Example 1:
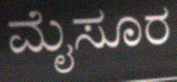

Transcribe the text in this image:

ಮೈಸೂರ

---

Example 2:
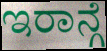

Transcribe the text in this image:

ಇರಾನ್ಗೆ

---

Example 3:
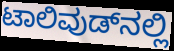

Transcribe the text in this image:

ಟಾಲಿವುಡ್‌ನಲ್ಲಿ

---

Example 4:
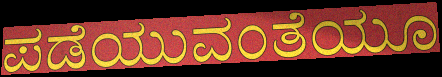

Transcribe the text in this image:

ಪಡೆಯುವಂತೆಯೂ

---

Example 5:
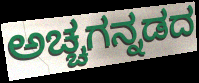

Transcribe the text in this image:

ಅಚ್ಚಗನ್ನಡದ